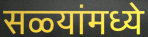
सळ्यांमध्ये